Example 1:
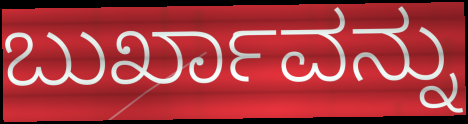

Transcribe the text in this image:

ಬುರ್ಖಾವನ್ನು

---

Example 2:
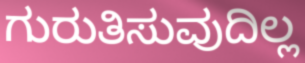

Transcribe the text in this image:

ಗುರುತಿಸುವುದಿಲ್ಲ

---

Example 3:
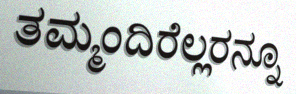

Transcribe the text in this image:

ತಮ್ಮಂದಿರೆಲ್ಲರನ್ನೂ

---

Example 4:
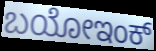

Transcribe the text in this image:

ಬಯೋಇಂಕ್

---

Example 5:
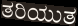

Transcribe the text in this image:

ತರಿಯುತ